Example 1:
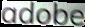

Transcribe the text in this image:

adobe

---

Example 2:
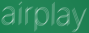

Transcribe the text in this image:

airplay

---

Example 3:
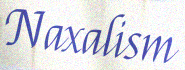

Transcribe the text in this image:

Naxalism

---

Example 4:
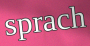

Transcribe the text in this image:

sprach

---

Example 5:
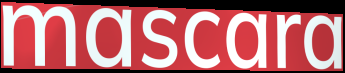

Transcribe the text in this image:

mascara